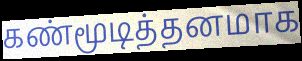
கண்மூடித்தனமாக